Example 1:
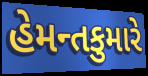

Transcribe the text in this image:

હેમન્તકુમારે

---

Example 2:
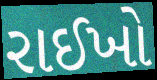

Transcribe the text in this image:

રાઈખો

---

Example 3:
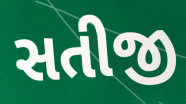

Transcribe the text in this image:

સતીજી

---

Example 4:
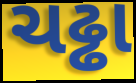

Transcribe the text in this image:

ચઢ્ઢા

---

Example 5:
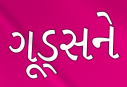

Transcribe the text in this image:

ગૂડ્સને